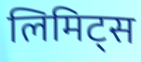
लिमिट्स